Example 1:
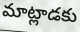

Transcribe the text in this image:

మాట్లాడకు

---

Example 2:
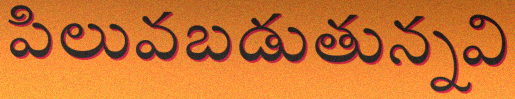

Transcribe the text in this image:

పిలువబడుతున్నవి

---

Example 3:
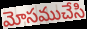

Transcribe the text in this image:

మోసముచేసి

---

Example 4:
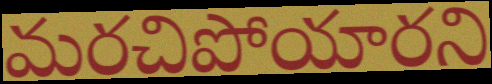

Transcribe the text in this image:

మరచిపోయారని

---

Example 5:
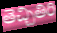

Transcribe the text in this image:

తెచ్చితిరి